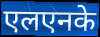
एलएनके